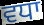
ਵਧਾ